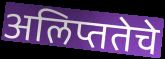
अलिप्ततेचे